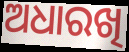
ଅଧାରଖି